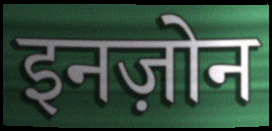
इनज़ोन